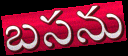
బసను